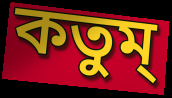
কতুম্